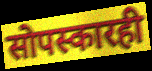
सोपस्कारही